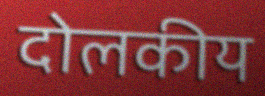
दोलकीय